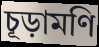
চূড়ামণি